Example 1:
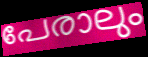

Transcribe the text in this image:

പേരാലും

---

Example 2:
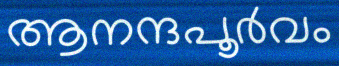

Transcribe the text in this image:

ആനന്ദപൂർവം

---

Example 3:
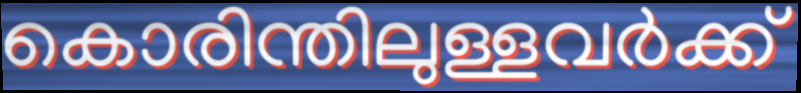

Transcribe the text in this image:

കൊരിന്തിലുള്ളവർക്ക്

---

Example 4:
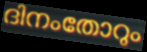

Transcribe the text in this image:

ദിനംതോറും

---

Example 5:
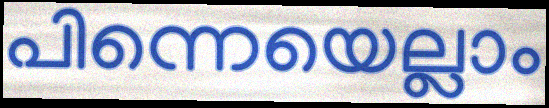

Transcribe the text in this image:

പിന്നെയെല്ലാം